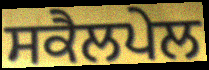
ਸਕੈਲਪੇਲ